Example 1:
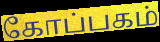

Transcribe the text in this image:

கோப்பகம்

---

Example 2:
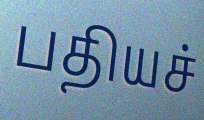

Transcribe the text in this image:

பதியச்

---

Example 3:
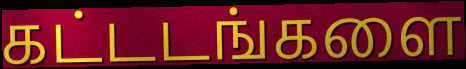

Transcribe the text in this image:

கட்டடங்களை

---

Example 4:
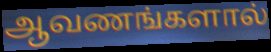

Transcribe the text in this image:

ஆவணங்களால்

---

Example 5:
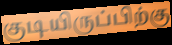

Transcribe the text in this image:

குடியிருப்பிற்கு